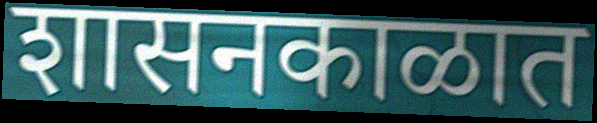
शासनकाळात